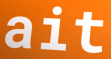
ait